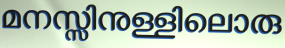
മനസ്സിനുള്ളിലൊരു